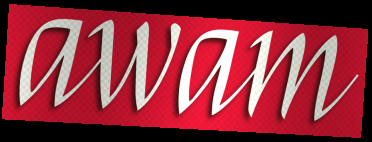
awam